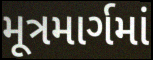
મૂત્રમાર્ગમાં